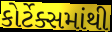
કોર્ટેક્સમાંથી